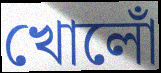
খোলোঁ